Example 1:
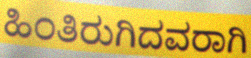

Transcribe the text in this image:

ಹಿಂತಿರುಗಿದವರಾಗಿ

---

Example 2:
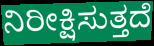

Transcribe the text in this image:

ನಿರೀಕ್ಷಿಸುತ್ತದೆ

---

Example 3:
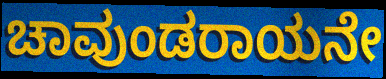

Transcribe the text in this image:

ಚಾವುಂಡರಾಯನೇ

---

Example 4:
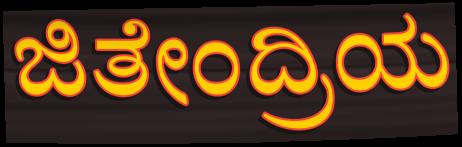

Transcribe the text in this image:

ಜಿತೇಂದ್ರಿಯ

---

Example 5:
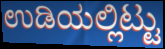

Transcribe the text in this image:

ಉಡಿಯಲ್ಲಿಟ್ಟು